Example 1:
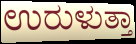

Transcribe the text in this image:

ಉರುಳುತ್ತಾ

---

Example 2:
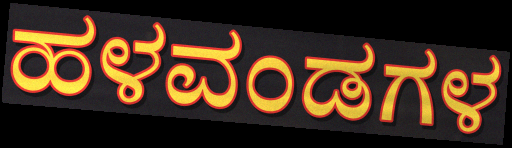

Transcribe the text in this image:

ಹಳವಂಡಗಳ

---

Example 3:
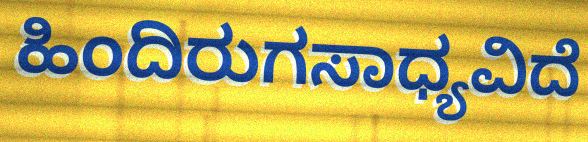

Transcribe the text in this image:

ಹಿಂದಿರುಗಸಾಧ್ಯವಿದೆ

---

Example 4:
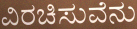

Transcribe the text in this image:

ವಿರಚಿಸುವೆನು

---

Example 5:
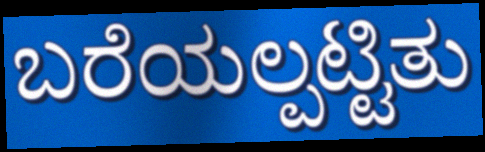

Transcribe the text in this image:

ಬರೆಯಲ್ಪಟ್ಟಿತು